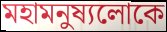
মহামনুষ্যলোকে